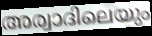
അര്വാദിലെയും